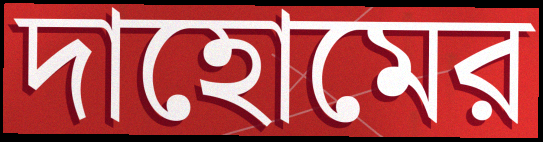
দাহোমের